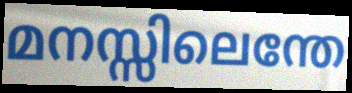
മനസ്സിലെന്തേ